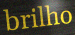
brilho